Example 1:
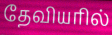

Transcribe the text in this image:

தேவியரில்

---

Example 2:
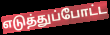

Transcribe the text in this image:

எடுத்துப்போட்ட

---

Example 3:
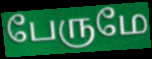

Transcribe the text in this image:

பேருமே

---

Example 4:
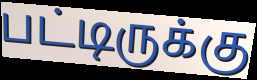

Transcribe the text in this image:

பட்டிருக்கு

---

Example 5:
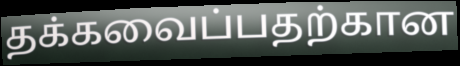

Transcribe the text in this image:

தக்கவைப்பதற்கான